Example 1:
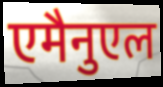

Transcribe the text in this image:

एमैनुएल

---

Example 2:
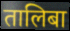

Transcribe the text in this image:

तालिबा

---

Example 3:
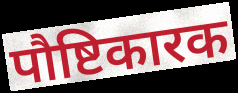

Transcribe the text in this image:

पौष्टिकारक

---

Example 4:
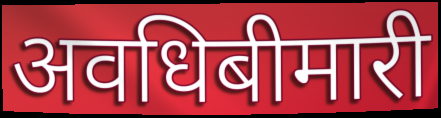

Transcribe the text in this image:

अवधिबीमारी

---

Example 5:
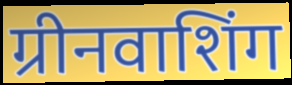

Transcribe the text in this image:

ग्रीनवाशिंग